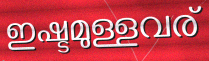
ഇഷ്ടമുള്ളവര്